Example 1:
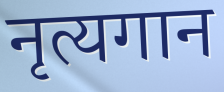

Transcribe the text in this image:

नृत्यगान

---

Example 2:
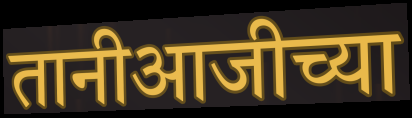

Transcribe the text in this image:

तानीआजीच्या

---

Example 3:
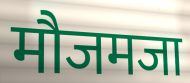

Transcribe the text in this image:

मौजमजा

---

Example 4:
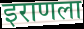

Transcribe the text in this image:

इराणला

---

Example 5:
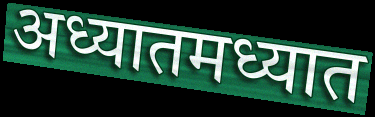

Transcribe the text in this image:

अध्यातमध्यात